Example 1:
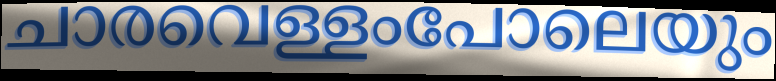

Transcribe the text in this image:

ചാരവെള്ളംപോലെയും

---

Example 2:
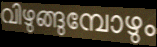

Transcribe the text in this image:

വിഴുങ്ങുമ്പോഴും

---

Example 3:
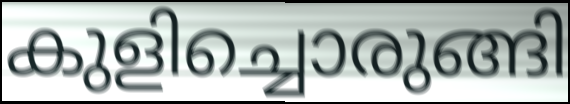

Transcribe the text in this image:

കുളിച്ചൊരുങ്ങി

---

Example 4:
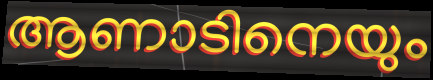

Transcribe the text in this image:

ആണാടിനെയും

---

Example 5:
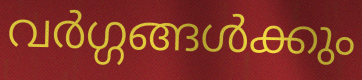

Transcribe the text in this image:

വർഗ്ഗങ്ങൾക്കും